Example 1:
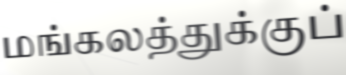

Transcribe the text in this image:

மங்கலத்துக்குப்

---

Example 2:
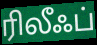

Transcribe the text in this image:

ரிலீஃப்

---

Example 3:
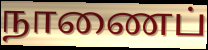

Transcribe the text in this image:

நாணைப்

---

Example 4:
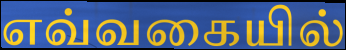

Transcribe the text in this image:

எவ்வகையில்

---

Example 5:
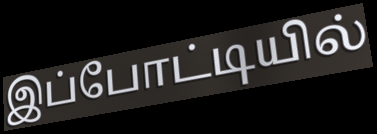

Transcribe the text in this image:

இப்போட்டியில்